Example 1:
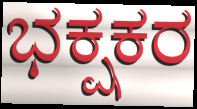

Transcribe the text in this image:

ಭಕ್ಷಕರ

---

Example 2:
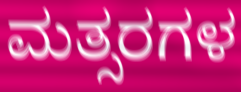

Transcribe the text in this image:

ಮತ್ಸರಗಳ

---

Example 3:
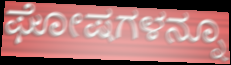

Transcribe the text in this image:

ಘೋಷಗಳನ್ನೂ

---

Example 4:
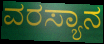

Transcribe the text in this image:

ವರಸ್ಯಾನ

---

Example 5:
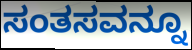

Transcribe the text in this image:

ಸಂತಸವನ್ನೂ